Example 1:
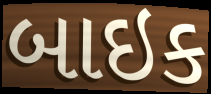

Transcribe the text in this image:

બાઇક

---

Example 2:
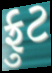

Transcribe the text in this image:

ફ્રુટ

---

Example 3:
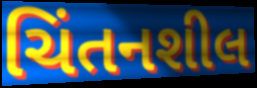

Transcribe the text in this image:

ચિંતનશીલ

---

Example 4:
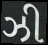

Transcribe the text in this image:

ઝી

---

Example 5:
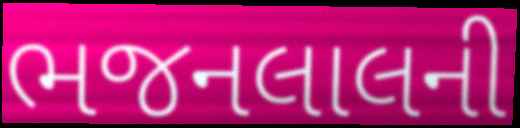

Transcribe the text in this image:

ભજનલાલની